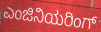
ಎಂಜಿನಿಯರಿಂಗ್